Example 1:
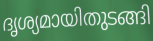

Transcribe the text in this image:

ദൃശ്യമായിതുടങ്ങി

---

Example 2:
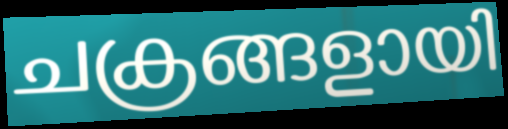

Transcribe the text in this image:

ചക്രങ്ങളായി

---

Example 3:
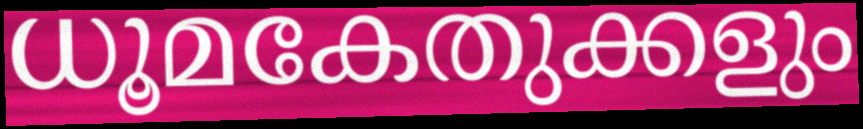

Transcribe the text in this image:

ധൂമകേതുക്കളും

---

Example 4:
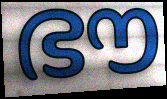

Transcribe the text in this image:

ഭൗ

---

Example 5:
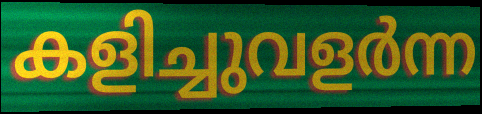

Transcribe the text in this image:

കളിച്ചുവളർന്ന